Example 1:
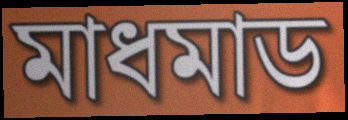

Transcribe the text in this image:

মাধমাড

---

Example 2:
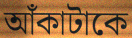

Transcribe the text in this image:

আঁকাটাকে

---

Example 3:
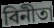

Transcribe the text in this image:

বিনীতা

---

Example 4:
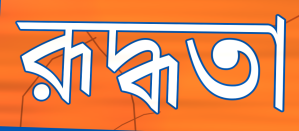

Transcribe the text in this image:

রূদ্ধতা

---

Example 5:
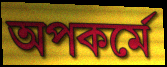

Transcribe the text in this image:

অপকর্মে